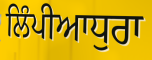
ਲਿੰਪੀਆਧੁਰਾ